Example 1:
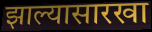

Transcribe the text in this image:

झाल्यासारखा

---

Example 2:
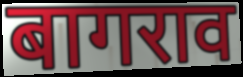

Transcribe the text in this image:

बागराव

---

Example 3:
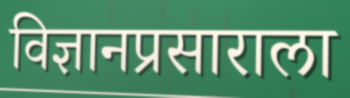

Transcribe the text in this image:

विज्ञानप्रसाराला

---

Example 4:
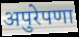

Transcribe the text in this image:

अपुरेपणा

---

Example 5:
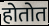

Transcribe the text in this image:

होतोत